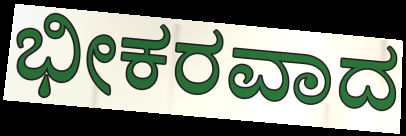
ಭೀಕರವಾದ